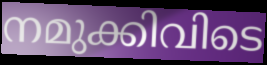
നമുക്കിവിടെ